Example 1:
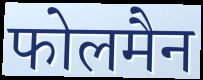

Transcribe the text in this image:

फोलमैन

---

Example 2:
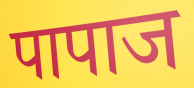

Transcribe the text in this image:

पापाज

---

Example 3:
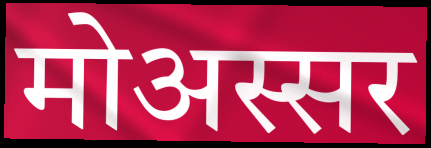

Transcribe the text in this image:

मोअस्सर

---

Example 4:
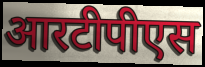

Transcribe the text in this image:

आरटीपीएस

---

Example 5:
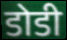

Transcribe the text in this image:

डोडी